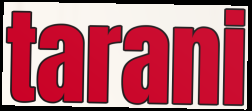
tarani